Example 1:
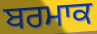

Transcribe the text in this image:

ਬਰਮਾਕ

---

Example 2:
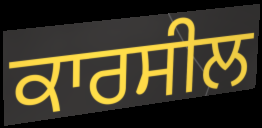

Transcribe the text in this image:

ਕਾਰਸੀਲ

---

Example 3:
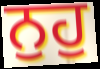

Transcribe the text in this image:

ਨੁਹੁ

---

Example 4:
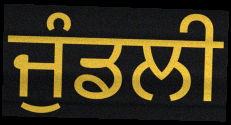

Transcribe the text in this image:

ਜੁੰਡਲੀ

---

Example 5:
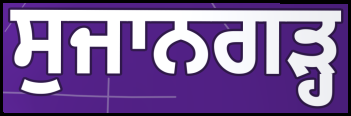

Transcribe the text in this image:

ਸੁਜਾਨਗੜ੍ਹ